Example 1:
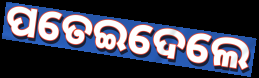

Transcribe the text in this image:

ପତେଇଦେଲେ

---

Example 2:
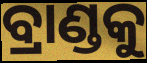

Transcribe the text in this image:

ବ୍ରାଣ୍ଡକୁ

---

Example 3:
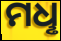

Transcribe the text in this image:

ମଧୢ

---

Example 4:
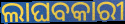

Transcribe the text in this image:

ଲାଘବକାରୀ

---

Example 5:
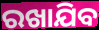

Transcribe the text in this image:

ରଖାଯିବ